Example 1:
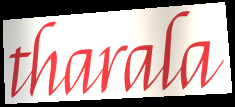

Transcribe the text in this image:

tharala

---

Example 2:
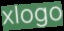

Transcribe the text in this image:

xlogo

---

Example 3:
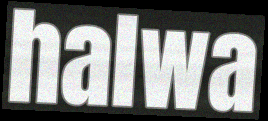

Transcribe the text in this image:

halwa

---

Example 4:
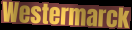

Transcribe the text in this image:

Westermarck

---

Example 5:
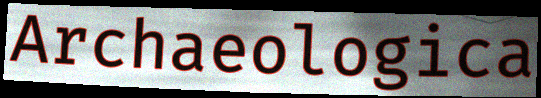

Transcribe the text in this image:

Archaeologica